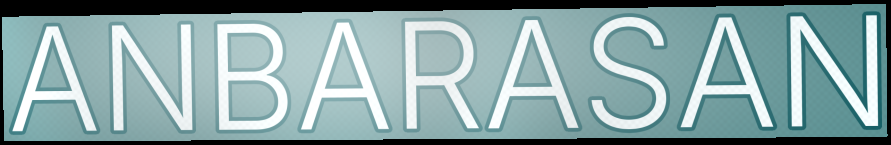
ANBARASAN